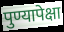
पुण्यापेक्षा